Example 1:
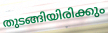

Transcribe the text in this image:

തുടങ്ങിയിരിക്കും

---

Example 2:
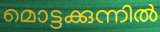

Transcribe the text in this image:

മൊട്ടക്കുന്നിൽ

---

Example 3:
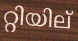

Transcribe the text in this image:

റ്റിയില്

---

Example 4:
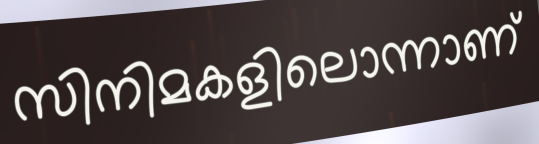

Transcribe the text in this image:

സിനിമകളിലൊന്നാണ്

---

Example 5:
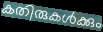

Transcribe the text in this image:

കതിരുകൾക്കും